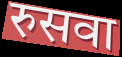
रुसवा